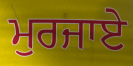
ਮੁਰਜਾਏ